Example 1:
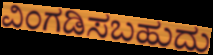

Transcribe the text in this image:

ವಿಂಗಡಿಸಬಹುದು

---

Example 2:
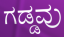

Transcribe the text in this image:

ಗಡ್ಡವು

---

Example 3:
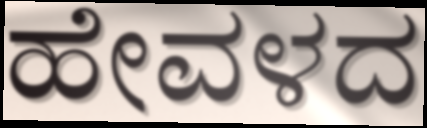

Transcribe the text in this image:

ಹೇವಳದ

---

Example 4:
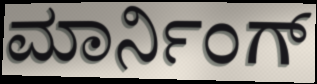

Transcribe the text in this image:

ಮಾರ್ನಿಂಗ್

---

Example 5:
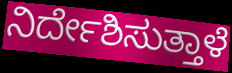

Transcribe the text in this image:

ನಿರ್ದೇಶಿಸುತ್ತಾಳೆ